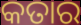
କତାର